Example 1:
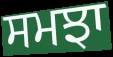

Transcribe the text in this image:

ਸਮਝਾ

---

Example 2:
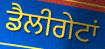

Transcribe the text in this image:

ਡੈਲੀਗੇਟਾਂ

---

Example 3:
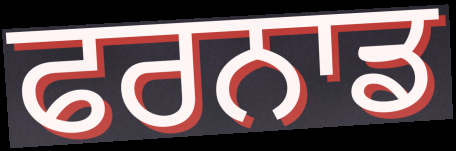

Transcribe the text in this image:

ਫਰਨਾਡ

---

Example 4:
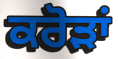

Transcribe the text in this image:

ਕਰੋਡ਼ਾਂ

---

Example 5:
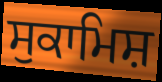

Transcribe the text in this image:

ਸੁਕਾਮਿਸ਼